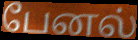
பேனல்